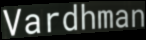
Vardhman